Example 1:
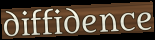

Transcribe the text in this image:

diffidence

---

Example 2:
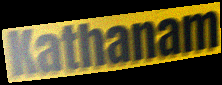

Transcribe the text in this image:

Kathanam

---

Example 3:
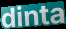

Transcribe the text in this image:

dinta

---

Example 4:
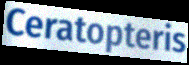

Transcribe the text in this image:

Ceratopteris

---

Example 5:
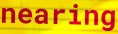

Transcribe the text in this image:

nearing